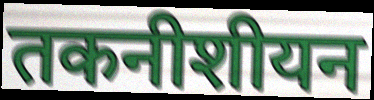
तकनीशीयन